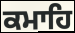
ਕਮਾਹਿ